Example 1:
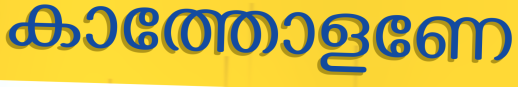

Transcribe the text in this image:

കാത്തോളണേ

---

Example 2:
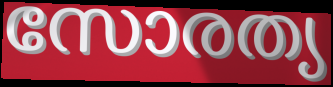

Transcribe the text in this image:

സോരത്യ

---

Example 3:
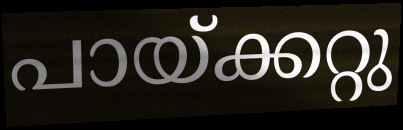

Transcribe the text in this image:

പായ്ക്കറ്റു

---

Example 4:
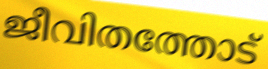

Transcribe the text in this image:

ജീവിതത്തോട്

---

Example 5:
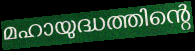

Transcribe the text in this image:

മഹായുദ്ധത്തിന്റെ